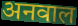
अनवाल